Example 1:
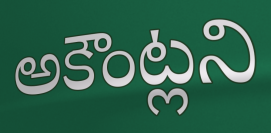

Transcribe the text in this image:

అకౌంట్లని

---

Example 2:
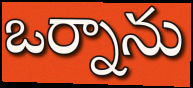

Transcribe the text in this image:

ఒర్నాను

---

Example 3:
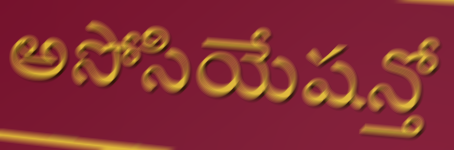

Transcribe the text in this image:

అసోసియేషన్తో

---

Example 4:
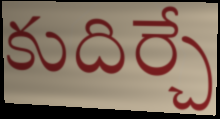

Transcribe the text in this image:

కుదిర్చే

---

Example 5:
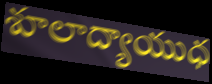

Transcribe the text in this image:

శూలాద్యాయుధ